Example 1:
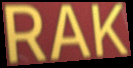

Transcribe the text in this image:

RAK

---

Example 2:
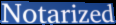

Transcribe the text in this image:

Notarized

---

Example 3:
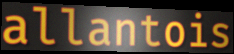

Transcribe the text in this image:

allantois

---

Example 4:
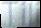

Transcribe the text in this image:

Tili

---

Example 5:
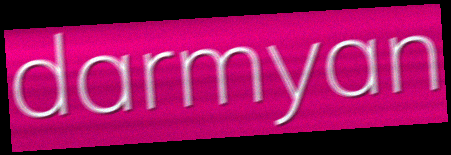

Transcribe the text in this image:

darmyan